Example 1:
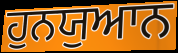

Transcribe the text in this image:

ਹੁਨਯੁਆਨ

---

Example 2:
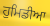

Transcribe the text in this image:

ਹੁਮਿਡੀਆ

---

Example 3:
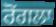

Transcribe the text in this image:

ਰੋਂਗਲਾ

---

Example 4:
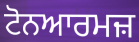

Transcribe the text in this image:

ਟੋਨਆਰਮਜ਼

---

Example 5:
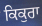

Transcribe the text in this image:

ਕਿਕੁਰਾ